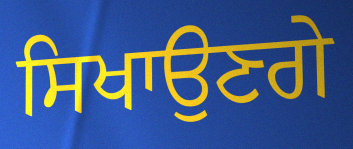
ਸਿਖਾਉਣਗੇ